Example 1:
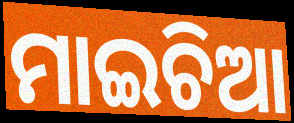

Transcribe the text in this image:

ମାଇଚିଆ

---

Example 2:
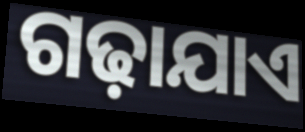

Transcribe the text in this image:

ଗଢ଼ାଯାଏ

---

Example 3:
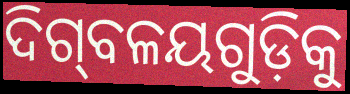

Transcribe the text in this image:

ଦିଗ୍‌ବଳୟଗୁଡ଼ିକୁ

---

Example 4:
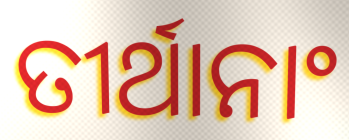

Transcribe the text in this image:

ତୀର୍ଥାନାଂ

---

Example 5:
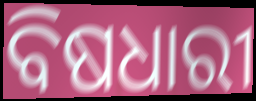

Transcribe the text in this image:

ବିଷଧାରୀ